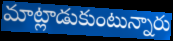
మాట్లాడుకుంటున్నారు